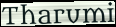
Tharumi